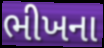
ભીખના